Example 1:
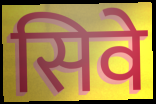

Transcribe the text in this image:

सिवे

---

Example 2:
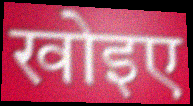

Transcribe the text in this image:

खोइए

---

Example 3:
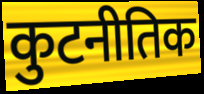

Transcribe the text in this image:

कुटनीतिक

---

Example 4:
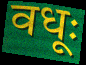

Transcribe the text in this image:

वधूः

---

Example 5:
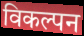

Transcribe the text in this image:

विकल्पन